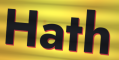
Hath